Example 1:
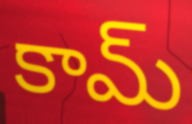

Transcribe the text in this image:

కామ్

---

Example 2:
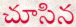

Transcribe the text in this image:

చూసిన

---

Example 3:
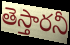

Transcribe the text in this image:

తెస్తారనీ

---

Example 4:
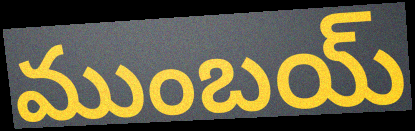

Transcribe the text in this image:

ముంబయ్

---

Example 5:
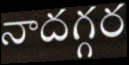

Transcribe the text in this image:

నాదగ్గర